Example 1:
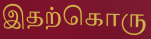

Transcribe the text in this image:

இதற்கொரு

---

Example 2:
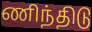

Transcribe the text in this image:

ணிந்திடு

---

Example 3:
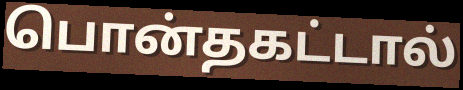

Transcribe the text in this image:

பொன்தகட்டால்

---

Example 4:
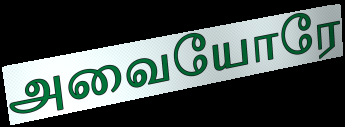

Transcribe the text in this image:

அவையோரே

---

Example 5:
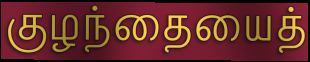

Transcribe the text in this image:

குழந்தையைத்